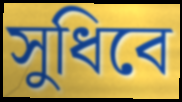
সুধিবে